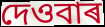
দেওবাৰ